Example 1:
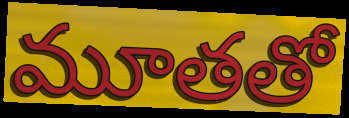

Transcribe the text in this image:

మూతతో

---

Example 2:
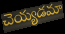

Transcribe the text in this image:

చెయ్యడమా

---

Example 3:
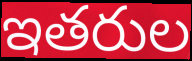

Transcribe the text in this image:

ఇతరుల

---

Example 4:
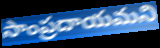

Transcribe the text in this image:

సాంప్రదాయమని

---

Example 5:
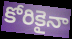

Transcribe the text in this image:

కోరికైనా